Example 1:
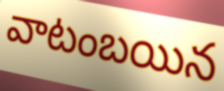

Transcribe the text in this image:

వాటంబయిన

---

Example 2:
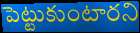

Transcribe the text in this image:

పెట్టుకుంటారని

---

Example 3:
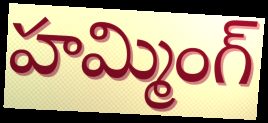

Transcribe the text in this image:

హమ్మింగ్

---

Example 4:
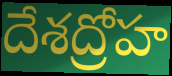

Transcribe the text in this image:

దేశద్రోహ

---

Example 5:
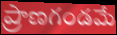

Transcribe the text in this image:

ప్రాణగండమే